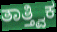
ತಾತ್ತ್ವಿಕ